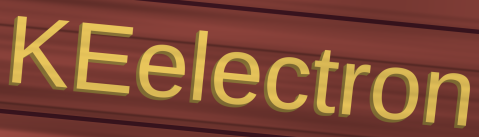
KEelectron